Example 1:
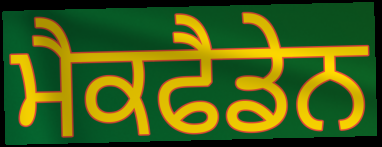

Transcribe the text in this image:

ਮੈਕਫੈਡੇਨ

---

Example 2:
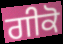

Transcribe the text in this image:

ਗੀਕੋ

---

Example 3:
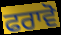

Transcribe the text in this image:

ਫਰਾਵੋ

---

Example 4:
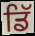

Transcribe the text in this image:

ਡਿੱ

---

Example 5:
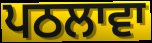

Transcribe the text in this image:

ਪਠਲਾਵਾ